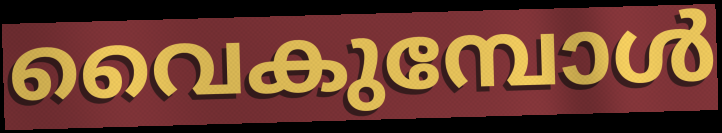
വൈകുമ്പോൾ